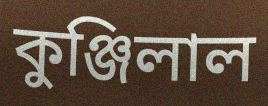
কুঞ্জিলাল